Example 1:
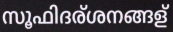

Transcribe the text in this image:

സൂഫിദര്ശനങ്ങള്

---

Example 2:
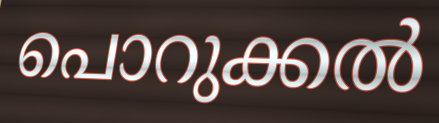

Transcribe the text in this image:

പൊറുക്കൽ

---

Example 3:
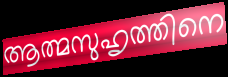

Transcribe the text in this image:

ആത്മസുഹൃത്തിനെ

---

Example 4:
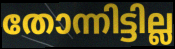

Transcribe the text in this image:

തോന്നിട്ടില്ല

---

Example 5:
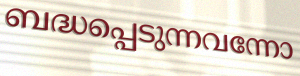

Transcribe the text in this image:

ബദ്ധപ്പെടുന്നവന്നോ